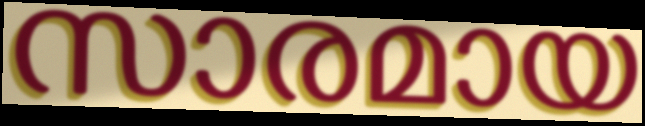
സാരമായ